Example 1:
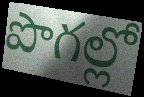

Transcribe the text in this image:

పొగల్లో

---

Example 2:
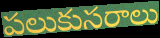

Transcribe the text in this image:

పలుకుసరాలు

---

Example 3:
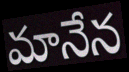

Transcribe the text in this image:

మానేన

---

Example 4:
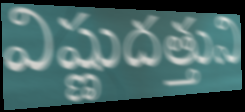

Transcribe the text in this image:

విష్ణుదత్తుని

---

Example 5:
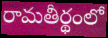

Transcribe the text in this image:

రామతీర్థంలో